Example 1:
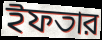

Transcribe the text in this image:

ইফতার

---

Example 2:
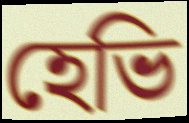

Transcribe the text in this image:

হেভি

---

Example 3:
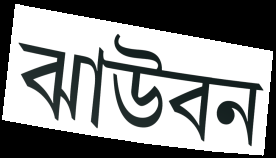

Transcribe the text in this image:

ঝাউবন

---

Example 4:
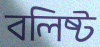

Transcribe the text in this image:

বলিষ্ট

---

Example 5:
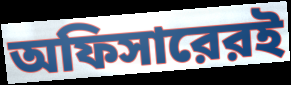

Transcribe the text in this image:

অফিসারেরই